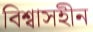
বিশ্বাসহীন